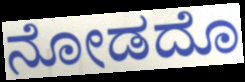
ನೋಡದೊ